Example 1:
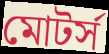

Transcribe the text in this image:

মোটর্স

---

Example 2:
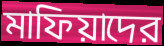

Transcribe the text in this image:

মাফিয়াদের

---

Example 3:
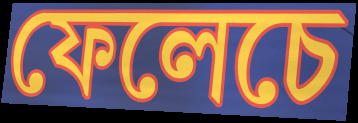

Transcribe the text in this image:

ফেলেচে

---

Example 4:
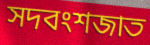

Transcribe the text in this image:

সদবংশজাত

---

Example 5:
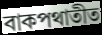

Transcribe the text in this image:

বাকপথাতীত